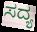
ಸದ್ಯ